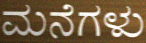
ಮನೆಗಳು